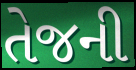
તેજની